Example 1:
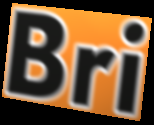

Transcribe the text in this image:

Bri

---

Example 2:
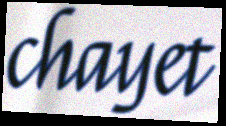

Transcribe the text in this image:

chayet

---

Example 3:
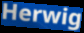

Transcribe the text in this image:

Herwig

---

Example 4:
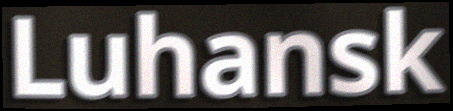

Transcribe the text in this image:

Luhansk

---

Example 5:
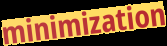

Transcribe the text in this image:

minimization